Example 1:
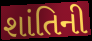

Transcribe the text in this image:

શાંતિની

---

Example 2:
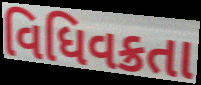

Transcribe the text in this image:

વિધિવક્રતા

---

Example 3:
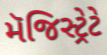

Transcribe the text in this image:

મૅજિસ્ટ્રેટે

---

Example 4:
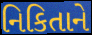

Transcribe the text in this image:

નિકિતાને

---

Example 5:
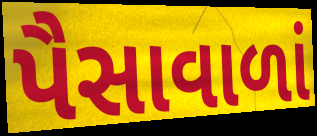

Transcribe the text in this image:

પૈસાવાળાં